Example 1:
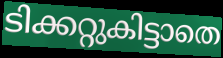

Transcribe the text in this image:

ടിക്കറ്റുകിട്ടാതെ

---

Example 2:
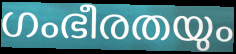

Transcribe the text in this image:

ഗംഭീരതയും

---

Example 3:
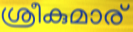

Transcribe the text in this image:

ശ്രീകുമാര്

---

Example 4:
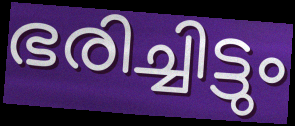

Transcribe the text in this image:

ഭരിച്ചിട്ടും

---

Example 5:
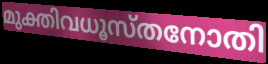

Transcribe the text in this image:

മുക്തിവധൂസ്തനോതി